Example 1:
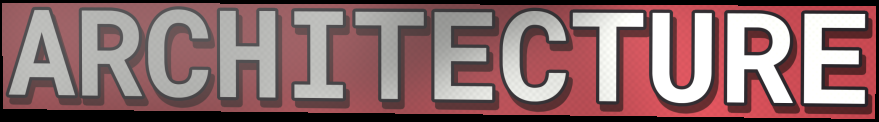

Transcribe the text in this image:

ARCHITECTURE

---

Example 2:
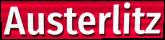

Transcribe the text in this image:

Austerlitz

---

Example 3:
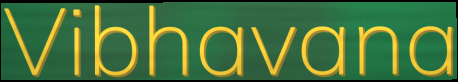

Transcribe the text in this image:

Vibhavana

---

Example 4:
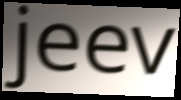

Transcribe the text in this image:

jeev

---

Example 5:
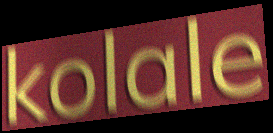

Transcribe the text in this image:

kolale